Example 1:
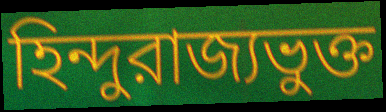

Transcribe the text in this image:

হিন্দুরাজ্যভুক্ত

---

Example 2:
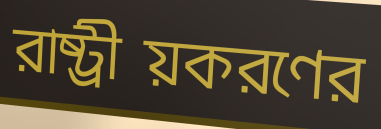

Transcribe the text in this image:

রাষ্ট্রীয়করণের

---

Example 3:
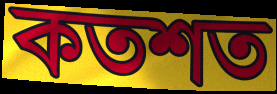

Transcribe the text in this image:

কতশত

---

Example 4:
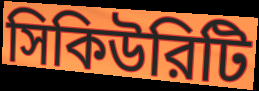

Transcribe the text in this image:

সিকিউরিটি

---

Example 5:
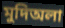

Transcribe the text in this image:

মুদিঅলা